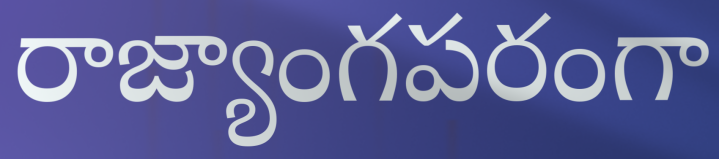
రాజ్యాంగపరంగా